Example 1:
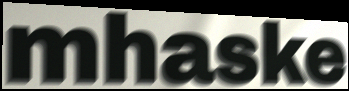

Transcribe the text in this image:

mhaske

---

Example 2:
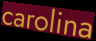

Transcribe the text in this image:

carolina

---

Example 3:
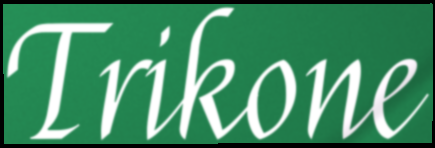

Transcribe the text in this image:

Trikone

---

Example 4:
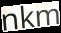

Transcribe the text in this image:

nkm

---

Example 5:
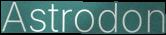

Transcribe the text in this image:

Astrodon